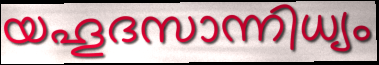
യഹൂദസാന്നിധ്യം